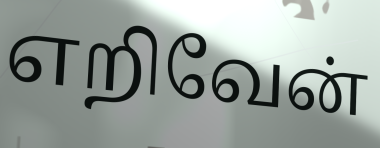
எறிவேன்